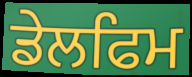
ਡੇਲਫਿਮ